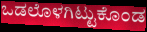
ಒಡಲೊಳಗಿಟ್ಟುಕೊಂಡ